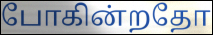
போகின்றதோ